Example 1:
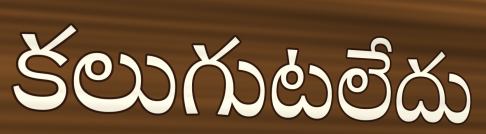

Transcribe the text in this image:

కలుగుటలేదు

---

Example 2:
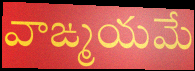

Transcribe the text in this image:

వాఙ్మయమే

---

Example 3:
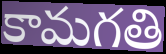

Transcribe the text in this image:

కామగతి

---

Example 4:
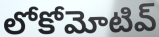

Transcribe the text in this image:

లోకోమోటివ్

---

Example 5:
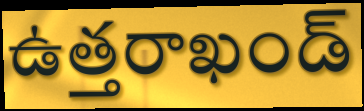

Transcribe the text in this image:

ఉత్తరాఖండ్